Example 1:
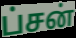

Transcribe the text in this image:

ப்சன்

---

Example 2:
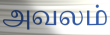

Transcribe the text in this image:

அவலம்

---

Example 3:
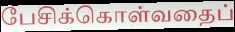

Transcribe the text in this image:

பேசிக்கொள்வதைப்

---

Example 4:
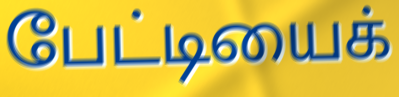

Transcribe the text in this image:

பேட்டியைக்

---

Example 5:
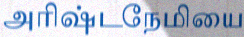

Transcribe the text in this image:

அரிஷ்டநேமியை